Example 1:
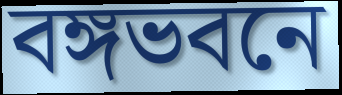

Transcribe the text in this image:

বঙ্গভবনে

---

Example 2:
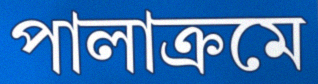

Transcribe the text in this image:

পালাক্রমে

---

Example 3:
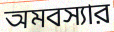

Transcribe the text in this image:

অমবস্যার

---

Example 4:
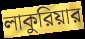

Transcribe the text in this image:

লাকুরিয়ার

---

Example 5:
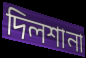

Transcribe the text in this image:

দিলশানা